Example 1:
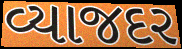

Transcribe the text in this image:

વ્યાજદર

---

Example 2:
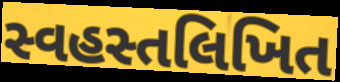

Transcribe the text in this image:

સ્વહસ્તલિખિત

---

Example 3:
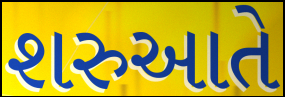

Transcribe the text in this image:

શરુઆતે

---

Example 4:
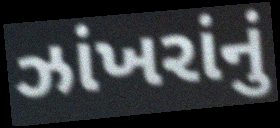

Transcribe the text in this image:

ઝાંખરાંનું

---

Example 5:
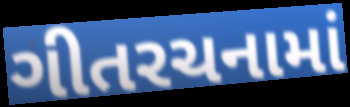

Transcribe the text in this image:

ગીતરચનામાં